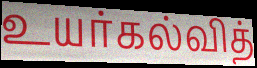
உயர்கல்வித்